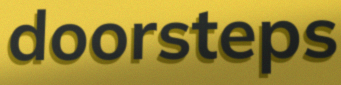
doorsteps